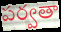
పర్వతా